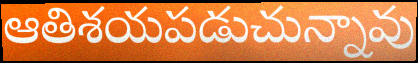
ఆతిశయపడుచున్నావు